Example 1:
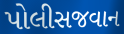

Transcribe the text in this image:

પોલીસજવાન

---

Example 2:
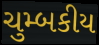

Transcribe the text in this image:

ચુમ્બકીય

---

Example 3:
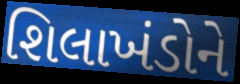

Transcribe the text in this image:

શિલાખંડોને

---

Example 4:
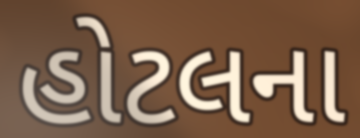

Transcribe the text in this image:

હોટલના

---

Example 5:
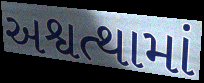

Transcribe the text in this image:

અશ્વત્થામાં